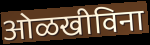
ओळखीविना